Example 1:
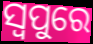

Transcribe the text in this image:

ସ୍ୱପୁରେ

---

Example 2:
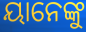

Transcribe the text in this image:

ୟାନେଙ୍କୁ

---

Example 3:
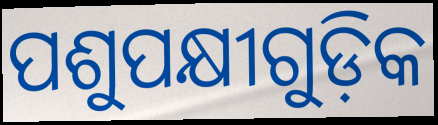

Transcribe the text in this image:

ପଶୁପକ୍ଷୀଗୁଡ଼ିକ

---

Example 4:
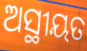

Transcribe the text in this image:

ଅସ୍ଥୀୟତ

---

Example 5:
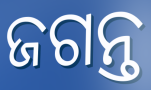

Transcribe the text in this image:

ଜଗନ୍ତ